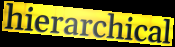
hierarchical